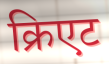
क्रिएट